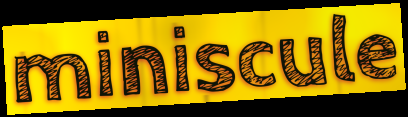
miniscule